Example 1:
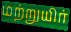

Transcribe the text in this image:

மற்றுயிர்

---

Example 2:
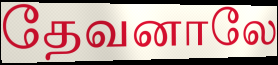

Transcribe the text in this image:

தேவனாலே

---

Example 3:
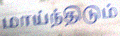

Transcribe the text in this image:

மாய்ந்திடும்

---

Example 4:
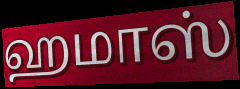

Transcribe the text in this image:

ஹமாஸ்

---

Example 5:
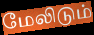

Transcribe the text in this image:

மேலிடும்